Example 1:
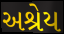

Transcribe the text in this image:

અશ્રેય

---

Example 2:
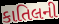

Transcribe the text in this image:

કાતિલની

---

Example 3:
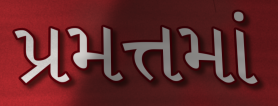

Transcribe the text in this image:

પ્રમત્તમાં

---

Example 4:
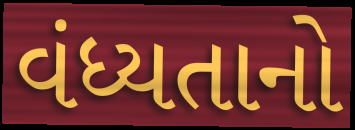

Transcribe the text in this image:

વંધ્યતાનો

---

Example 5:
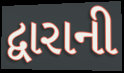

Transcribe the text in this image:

દ્વારાની